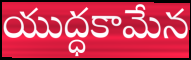
యుద్ధకామేన